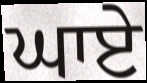
ਘਾਏ